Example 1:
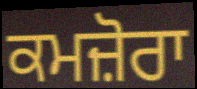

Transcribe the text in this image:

ਕਮਜ਼ੋਰਾ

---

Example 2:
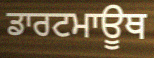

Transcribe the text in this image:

ਡਾਰਟਮਾਊਥ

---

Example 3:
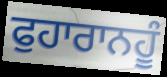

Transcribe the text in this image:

ਫੁਹਾਰਾਨਹੂੰ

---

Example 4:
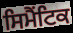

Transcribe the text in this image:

ਸਿਮੈਂਟਿਕ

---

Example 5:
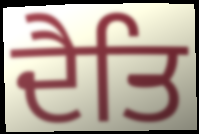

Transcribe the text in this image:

ਦੈਤਿ